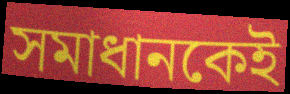
সমাধানকেই